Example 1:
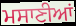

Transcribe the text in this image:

ਮਸਾਣੀਆਂ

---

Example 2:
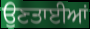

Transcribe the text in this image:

ਉਣਤਾਈਆਂ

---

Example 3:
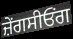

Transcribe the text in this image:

ਜ਼ੇਂਗਸੀਓਂਗ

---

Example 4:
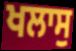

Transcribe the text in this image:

ਖਲਾਸੁ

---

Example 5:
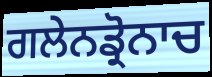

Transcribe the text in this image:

ਗਲੇਨਡ੍ਰੋਨਾਚ